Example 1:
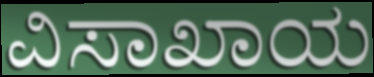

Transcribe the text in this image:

ವಿಸಾಖಾಯ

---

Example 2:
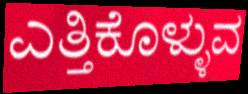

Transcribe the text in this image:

ಎತ್ತಿಕೊಳ್ಳುವ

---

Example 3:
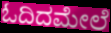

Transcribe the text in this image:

ಓದಿದಮೇಲೆ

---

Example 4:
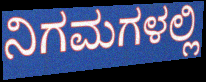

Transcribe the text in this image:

ನಿಗಮಗಳಲ್ಲಿ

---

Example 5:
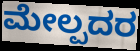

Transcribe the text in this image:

ಮೇಲ್ಪದರ